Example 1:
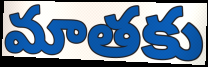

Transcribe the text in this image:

మాతకు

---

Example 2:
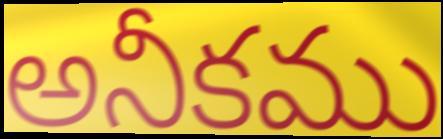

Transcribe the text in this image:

అనీకము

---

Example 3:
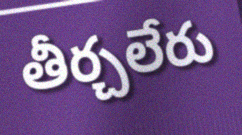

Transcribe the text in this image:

తీర్చలేరు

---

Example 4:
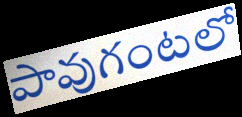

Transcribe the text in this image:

పావుగంటలో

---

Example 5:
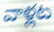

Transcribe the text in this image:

వాళ్లట